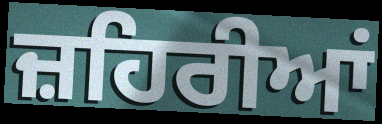
ਜ਼ਹਿਰੀਆਂ